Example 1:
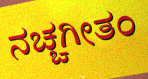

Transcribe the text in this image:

ನಚ್ಚಗೀತಂ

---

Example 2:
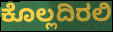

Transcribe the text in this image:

ಕೊಲ್ಲದಿರಲಿ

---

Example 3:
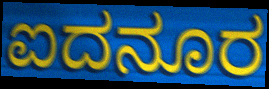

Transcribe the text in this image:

ಐದನೂರ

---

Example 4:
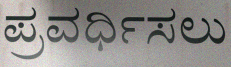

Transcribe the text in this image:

ಪ್ರವರ್ಧಿಸಲು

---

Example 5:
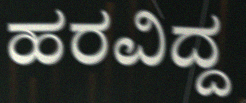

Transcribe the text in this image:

ಹರವಿದ್ದ